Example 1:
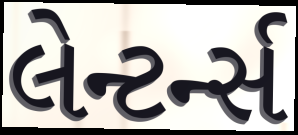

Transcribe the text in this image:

લેન્ટર્ન્સ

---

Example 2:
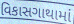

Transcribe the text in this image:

વિકાસગાથામાં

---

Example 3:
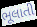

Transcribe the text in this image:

ભૂલાતી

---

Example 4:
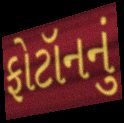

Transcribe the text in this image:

ફોટૉનનું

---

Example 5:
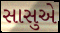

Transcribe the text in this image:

સાસુએ